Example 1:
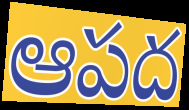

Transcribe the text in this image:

ఆపద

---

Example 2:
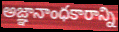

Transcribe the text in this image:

అజ్ఞానాంధకారాన్ని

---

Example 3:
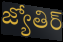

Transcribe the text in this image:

జ్యోతిర్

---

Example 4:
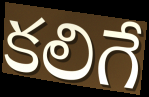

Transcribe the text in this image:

కలిగే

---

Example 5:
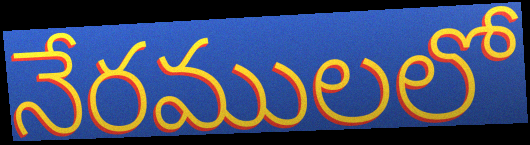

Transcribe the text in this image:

నేరములలో